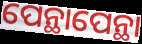
ପେନ୍ଥାପେନ୍ଥା